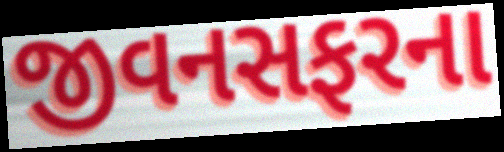
જીવનસફરના